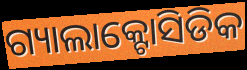
ଗ୍ୟାଲାକ୍ଟୋସିଡିକ